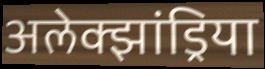
अलेक्झांड्रिया